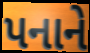
પનાને